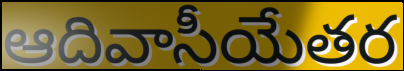
ఆదివాసీయేతర